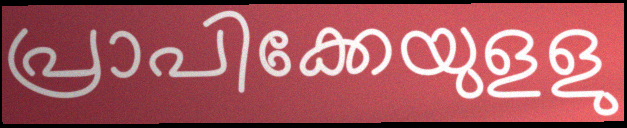
പ്രാപിക്കേയുളളു